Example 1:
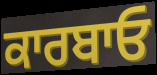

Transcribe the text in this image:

ਕਾਰਬਾਓ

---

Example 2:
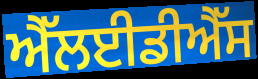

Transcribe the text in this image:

ਐੱਲਈਡੀਐੱਸ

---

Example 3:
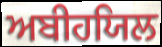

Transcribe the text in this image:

ਅਬੀਹਯਿਲ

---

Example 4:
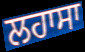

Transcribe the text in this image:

ਲਹਾਸਾ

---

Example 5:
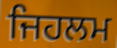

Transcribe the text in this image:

ਜਿਹਲਮ